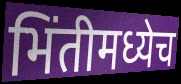
भिंतीमध्येच